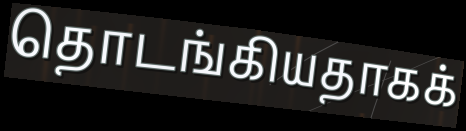
தொடங்கியதாகக்